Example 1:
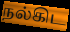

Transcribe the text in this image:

நல்கிட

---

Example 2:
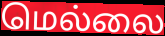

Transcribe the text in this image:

மெல்லை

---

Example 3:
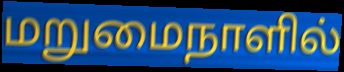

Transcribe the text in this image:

மறுமைநாளில்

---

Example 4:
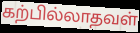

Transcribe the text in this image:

கற்பில்லாதவள்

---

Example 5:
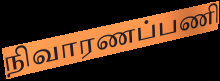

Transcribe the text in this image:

நிவாரணப்பணி